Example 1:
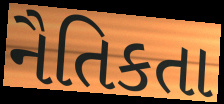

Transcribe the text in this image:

નૈતિકતા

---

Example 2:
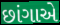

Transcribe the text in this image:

છાંગાએ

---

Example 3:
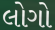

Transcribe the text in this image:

લોગો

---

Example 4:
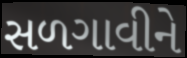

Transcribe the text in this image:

સળગાવીને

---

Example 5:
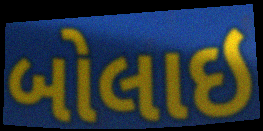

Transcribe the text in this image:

બોલાઇ